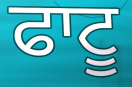
ਫਾਟੂ